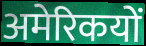
अमेरिकयों